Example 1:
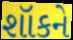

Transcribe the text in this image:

શૉકને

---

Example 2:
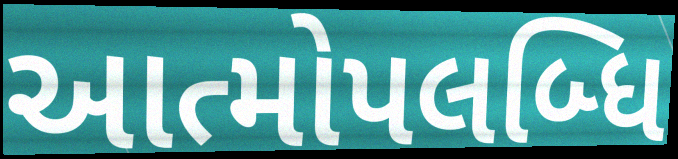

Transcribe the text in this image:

આત્મોપલબ્ધિ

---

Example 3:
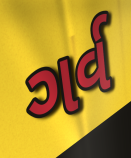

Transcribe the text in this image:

ગર્વ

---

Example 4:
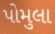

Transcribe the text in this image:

પોમુલા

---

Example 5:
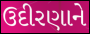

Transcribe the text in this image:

ઉદીરણાને